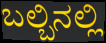
ಬಲ್ಬಿನಲ್ಲಿ